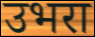
उभरा